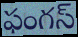
ఫంగస్